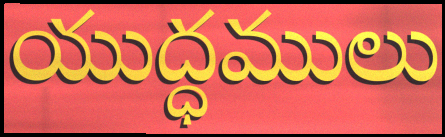
యుద్ధములు